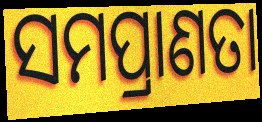
ସମପ୍ରାଣତା